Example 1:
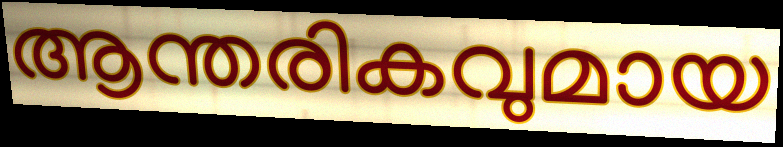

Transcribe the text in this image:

ആന്തരികവുമായ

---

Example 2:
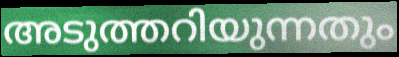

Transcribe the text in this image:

അടുത്തറിയുന്നതും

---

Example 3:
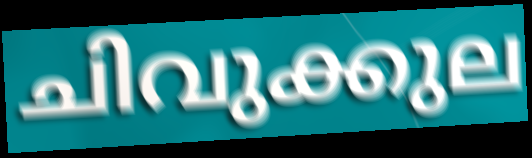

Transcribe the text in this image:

ചിവുക്കുല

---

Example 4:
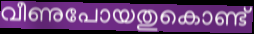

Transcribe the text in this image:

വീണുപോയതുകൊണ്ട്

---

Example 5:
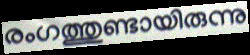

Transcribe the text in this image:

രംഗത്തുണ്ടായിരുന്നു